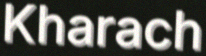
Kharach